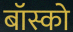
बॉस्को